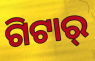
ଗିଟାର୍